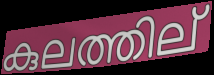
കുലത്തില്